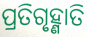
ପ୍ରତିଗୃହ୍ଣାତି